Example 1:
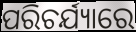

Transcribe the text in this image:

ପରିଚର୍ଯ୍ୟାରେ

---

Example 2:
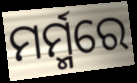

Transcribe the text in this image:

ମର୍ମ୍ମରେ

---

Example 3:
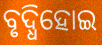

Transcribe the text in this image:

ବୃଦ୍ଧିହୋଇ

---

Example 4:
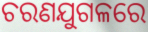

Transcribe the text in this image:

ଚରଣଯୁଗଳରେ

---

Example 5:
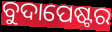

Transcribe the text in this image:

ବୁଦାପେଷ୍ଟର